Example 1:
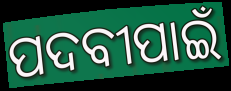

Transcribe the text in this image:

ପଦବୀପାଇଁ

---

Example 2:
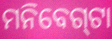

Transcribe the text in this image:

ମନିବେଗ୍‍ଟା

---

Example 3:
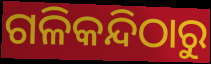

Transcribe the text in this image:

ଗଳିକନ୍ଦିଠାରୁ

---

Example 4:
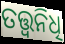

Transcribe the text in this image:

ତତ୍ତ୍ଵନିଧି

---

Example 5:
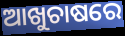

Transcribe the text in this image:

ଆଖୁଚାଷରେ